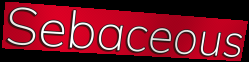
Sebaceous